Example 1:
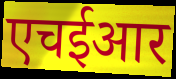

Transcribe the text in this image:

एचईआर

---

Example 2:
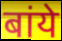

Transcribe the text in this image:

बांये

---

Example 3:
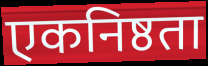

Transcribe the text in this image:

एकनिष्ठता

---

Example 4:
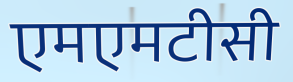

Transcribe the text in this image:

एमएमटीसी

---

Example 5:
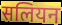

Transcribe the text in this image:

सलियन